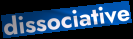
dissociative